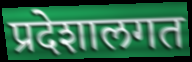
प्रदेशालगत